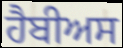
ਹੈਬੀਅਸ